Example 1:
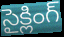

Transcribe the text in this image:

సైక్లింగ్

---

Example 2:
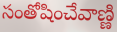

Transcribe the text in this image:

సంతోషించేవాణ్ణి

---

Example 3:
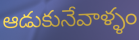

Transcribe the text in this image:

ఆడుకునేవాళ్ళం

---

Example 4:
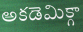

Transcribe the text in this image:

అకడెమిక్గా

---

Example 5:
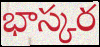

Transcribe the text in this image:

భాస్కర